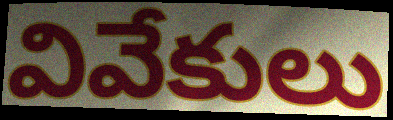
వివేకులు